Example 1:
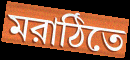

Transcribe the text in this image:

মরাঠিতে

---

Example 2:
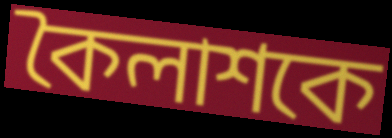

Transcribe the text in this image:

কৈলাশকে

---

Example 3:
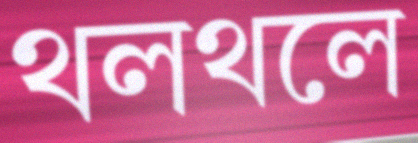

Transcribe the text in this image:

থলথলে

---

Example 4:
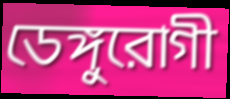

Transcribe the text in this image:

ডেঙ্গুরোগী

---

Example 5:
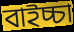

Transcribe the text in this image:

বাইচ্চা